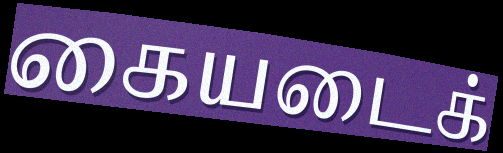
கையடைக்